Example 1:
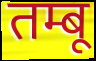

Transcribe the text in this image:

तम्‍बू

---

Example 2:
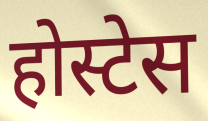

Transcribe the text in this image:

होस्टेस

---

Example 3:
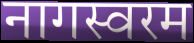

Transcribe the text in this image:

नागस्वरम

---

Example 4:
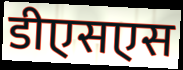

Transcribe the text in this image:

डीएसएस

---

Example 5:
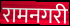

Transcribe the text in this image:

रामनगरी